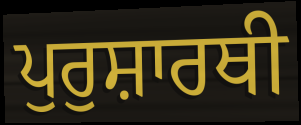
ਪੁਰੁਸ਼ਾਰਥੀ